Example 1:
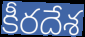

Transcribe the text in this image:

కీరదేశ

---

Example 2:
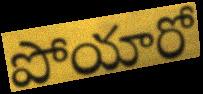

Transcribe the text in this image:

పోయారో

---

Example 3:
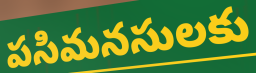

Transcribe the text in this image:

పసిమనసులకు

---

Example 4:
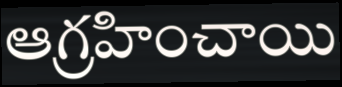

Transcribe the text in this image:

ఆగ్రహించాయి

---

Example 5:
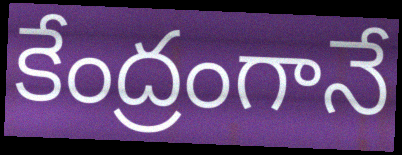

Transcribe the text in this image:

కేంద్రంగానే